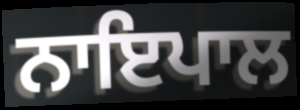
ਨਾਇਪਾਲ